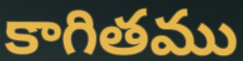
కాగితము